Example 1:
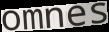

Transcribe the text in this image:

omnes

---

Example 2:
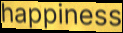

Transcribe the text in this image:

happiness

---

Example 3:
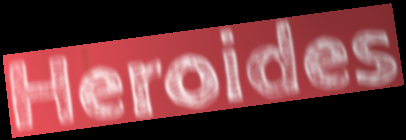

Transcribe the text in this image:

Heroides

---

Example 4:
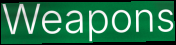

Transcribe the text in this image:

Weapons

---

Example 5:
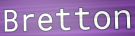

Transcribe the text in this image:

Bretton